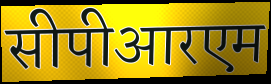
सीपीआरएम